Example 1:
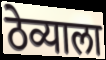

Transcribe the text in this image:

ठेव्याला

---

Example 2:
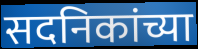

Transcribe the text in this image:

सदनिकांच्या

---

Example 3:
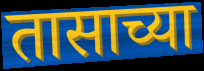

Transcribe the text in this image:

तासाच्या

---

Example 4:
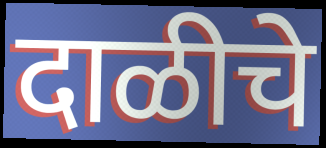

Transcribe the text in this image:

दाळीचे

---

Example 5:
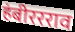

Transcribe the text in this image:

हंबीररराव